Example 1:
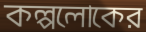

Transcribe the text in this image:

কল্পলোকের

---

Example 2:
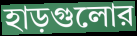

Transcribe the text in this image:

হাড়গুলোর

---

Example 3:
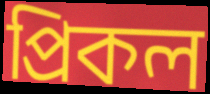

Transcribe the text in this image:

প্রিকল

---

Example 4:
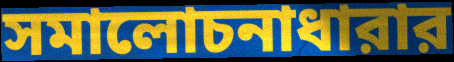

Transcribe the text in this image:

সমালোচনাধারার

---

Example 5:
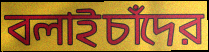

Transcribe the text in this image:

বলাইচাঁদের